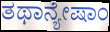
ತಥಾನ್ಯೇಷಾಂ